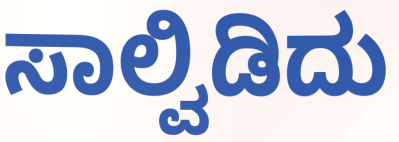
ಸಾಲ್ವಿಡಿದು